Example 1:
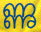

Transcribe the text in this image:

ണ്ണു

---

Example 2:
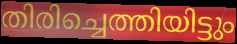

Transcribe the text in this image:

തിരിച്ചെത്തിയിട്ടും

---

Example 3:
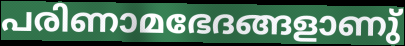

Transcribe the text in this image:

പരിണാമഭേദങ്ങളാണു്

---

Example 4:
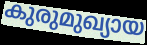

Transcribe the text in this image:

കുരുമുഖ്യായ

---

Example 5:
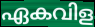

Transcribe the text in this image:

ഏകവിള